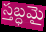
స్తబ్ధమై